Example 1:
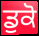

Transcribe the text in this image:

ਡੁਕੋ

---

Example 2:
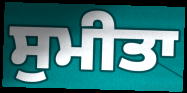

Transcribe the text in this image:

ਸੁਮੀਤਾ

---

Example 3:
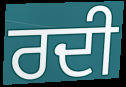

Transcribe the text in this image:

ਰਦੀ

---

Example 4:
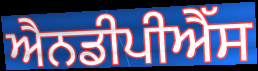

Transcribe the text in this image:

ਐਨਡੀਪੀਐੱਸ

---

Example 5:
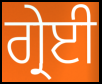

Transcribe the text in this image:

ਗ੍ਰੇਈ